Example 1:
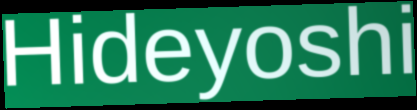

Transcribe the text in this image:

Hideyoshi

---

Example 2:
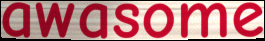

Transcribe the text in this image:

awasome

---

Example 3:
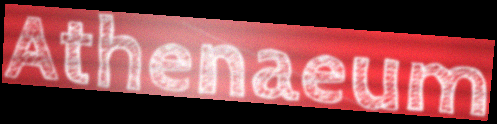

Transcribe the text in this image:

Athenaeum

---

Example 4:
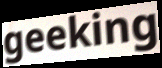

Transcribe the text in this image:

geeking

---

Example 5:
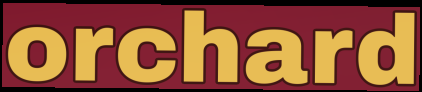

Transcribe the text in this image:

orchard